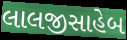
લાલજીસાહેબ